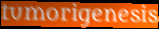
tumorigenesis